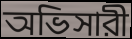
অভিসারী